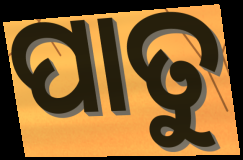
ପାତୁ